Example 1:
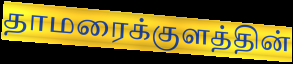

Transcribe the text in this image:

தாமரைக்குளத்தின்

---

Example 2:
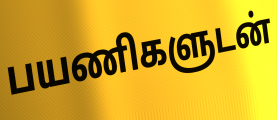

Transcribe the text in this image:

பயணிகளுடன்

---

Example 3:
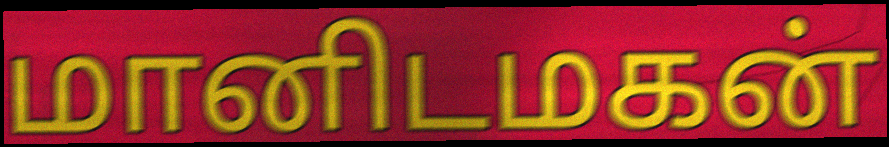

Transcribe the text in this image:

மானிடமகன்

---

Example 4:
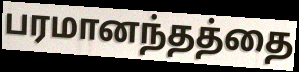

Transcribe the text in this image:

பரமானந்தத்தை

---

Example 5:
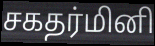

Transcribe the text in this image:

சகதர்மினி